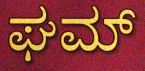
ಘಮ್